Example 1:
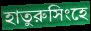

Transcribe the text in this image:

হাতুরুসিংহে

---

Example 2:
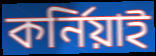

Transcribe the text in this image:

কর্নিয়াই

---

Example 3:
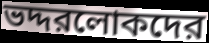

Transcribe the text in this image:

ভদ্দরলোকদের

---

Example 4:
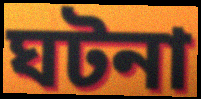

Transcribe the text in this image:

ঘটনা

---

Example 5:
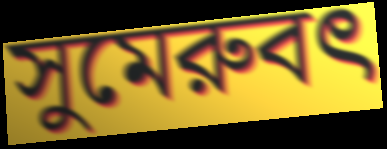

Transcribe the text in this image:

সুমেরুবৎ